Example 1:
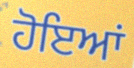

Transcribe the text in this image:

ਹੋਇਆਂ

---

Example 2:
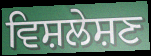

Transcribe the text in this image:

ਵਿਸ਼ਲੇਸ਼ਣ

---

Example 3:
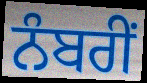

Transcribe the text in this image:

ਨੰਬਰੀਂ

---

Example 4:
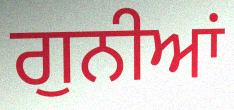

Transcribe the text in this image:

ਗੁਨੀਆਂ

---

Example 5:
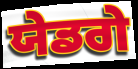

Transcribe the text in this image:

ਯੇਡਗੇ